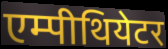
एम्पीथियेटर